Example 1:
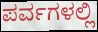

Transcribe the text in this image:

ಪರ್ವಗಳಲ್ಲಿ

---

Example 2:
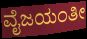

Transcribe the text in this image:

ವೈಜಯಂತೀ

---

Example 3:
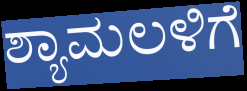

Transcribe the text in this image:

ಶ್ಯಾಮಲಳಿಗೆ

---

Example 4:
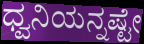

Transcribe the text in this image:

ಧ್ವನಿಯನ್ನಷ್ಟೇ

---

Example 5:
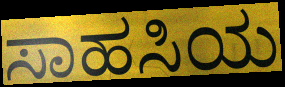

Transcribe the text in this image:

ಸಾಹಸಿಯ